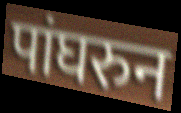
पांघरुन